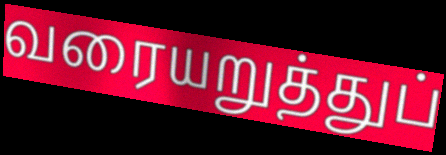
வரையறுத்துப்